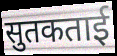
सुतकताई